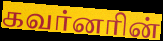
கவர்னரின்